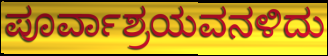
ಪೂರ್ವಾಶ್ರಯವನಳಿದು